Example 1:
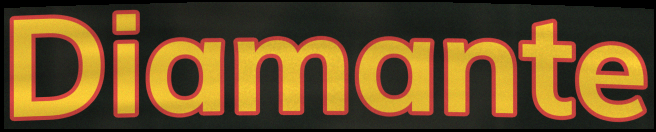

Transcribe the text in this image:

Diamante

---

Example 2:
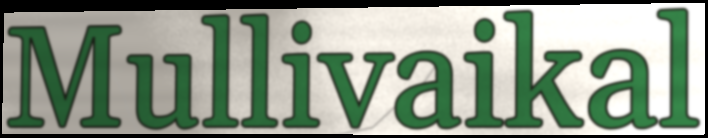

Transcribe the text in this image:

Mullivaikal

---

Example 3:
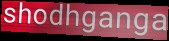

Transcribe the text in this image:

shodhganga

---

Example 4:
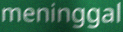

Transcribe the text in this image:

meninggal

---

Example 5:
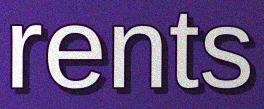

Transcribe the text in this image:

rents